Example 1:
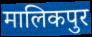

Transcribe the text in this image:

मालिकपुर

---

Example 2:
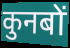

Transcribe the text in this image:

कुनबों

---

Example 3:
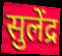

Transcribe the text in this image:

सुलेंद्र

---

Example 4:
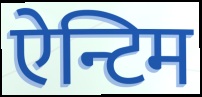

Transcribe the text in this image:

ऐन्टिम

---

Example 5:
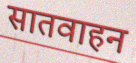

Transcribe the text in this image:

सातवाहन